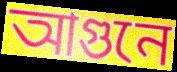
আগুনে